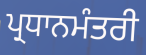
ਪ੍ਰਧਾਨਮੰਤਰੀ